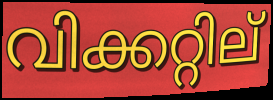
വിക്കറ്റില്